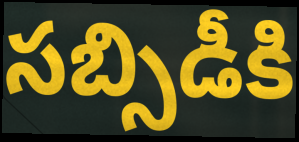
సబ్సిడీకి